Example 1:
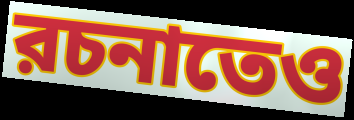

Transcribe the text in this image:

রচনাতেও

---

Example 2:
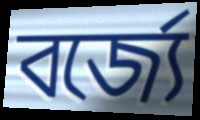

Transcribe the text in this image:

বর্জ্যে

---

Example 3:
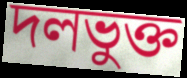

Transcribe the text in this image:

দলভুক্ত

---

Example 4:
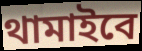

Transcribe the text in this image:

থামাইবে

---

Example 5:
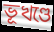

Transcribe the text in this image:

ভূখণ্ডে